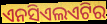
ଏନସିଏଲଏଟିର